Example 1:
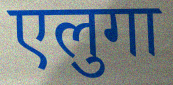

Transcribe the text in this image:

एलुगा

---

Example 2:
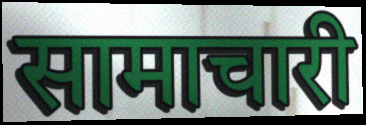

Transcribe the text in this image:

सामाचारी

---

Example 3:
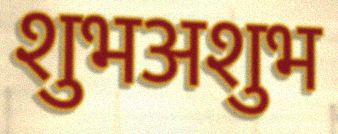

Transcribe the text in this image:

शुभअशुभ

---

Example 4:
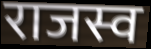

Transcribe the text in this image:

राजस्व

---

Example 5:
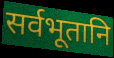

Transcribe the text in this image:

सर्वभूतानि